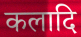
कलादि